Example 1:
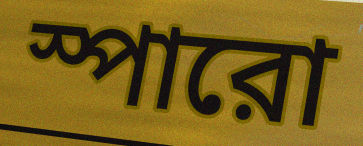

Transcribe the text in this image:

স্পারো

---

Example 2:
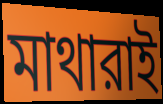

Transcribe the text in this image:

মাথারাই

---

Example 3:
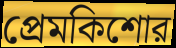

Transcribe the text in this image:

প্রেমকিশোর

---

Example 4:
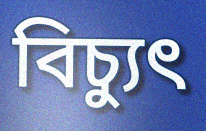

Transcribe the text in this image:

বিচ্যুৎ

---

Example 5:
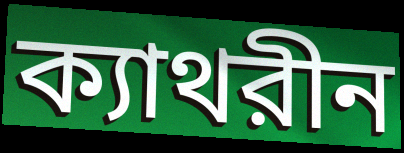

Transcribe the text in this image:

ক্যাথরীন